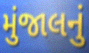
મુંજાલનું